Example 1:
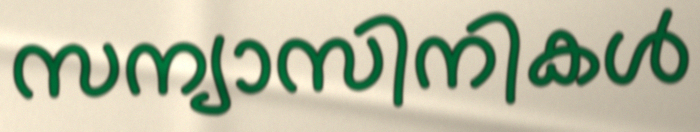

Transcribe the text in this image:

സന്യാസിനികൾ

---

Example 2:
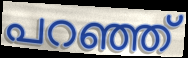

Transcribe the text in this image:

പറഞ്ഞ്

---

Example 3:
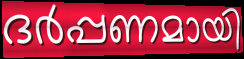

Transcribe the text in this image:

ദർപ്പണമായി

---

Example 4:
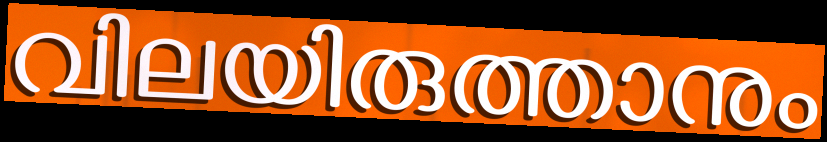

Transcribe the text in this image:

വിലയിരുത്താനും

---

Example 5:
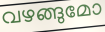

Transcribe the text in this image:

വഴങ്ങുമോ